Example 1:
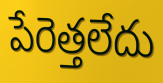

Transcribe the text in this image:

పేరెత్తలేదు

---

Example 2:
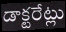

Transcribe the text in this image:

డాక్టరేట్లు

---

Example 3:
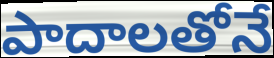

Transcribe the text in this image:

పాదాలతోనే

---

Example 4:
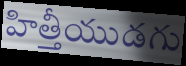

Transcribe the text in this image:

హిత్తీయుడగు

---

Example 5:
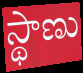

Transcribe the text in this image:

స్థాణు